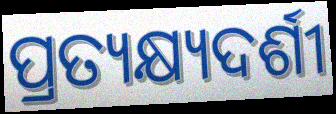
ପ୍ରତ୍ୟକ୍ଷ୍ୟଦର୍ଶୀ